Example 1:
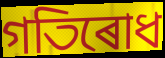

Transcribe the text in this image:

গতিৰোধ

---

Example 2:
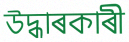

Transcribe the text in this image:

উদ্ধাৰকাৰী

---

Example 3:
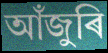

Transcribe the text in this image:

আঁজুৰি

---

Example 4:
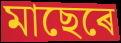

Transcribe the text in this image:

মাছেৰে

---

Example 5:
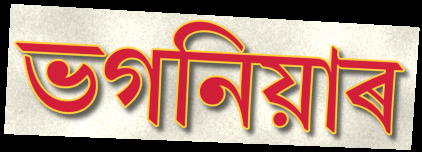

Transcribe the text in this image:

ভগনিয়াৰ